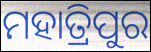
ମହାତ୍ରିପୁର